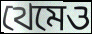
থেমেও